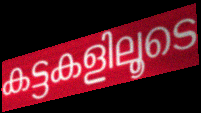
കട്ടകളിലൂടെ